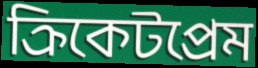
ক্রিকেটপ্রেম